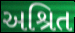
અશ્રિત